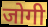
जोगी